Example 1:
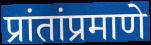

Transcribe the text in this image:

प्रांतांप्रमाणे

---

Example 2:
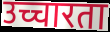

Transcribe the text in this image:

उच्चारता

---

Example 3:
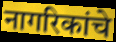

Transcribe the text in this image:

नागरिकांचे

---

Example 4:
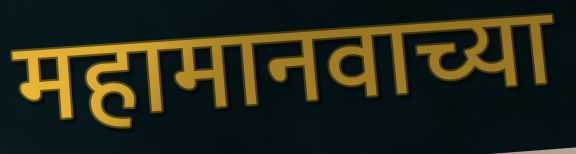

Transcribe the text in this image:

महामानवाच्या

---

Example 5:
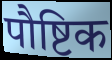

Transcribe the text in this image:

पौष्टिक